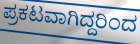
ಪ್ರಕಟವಾಗಿದ್ದರಿಂದ